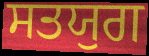
ਸਤਯੁਗ